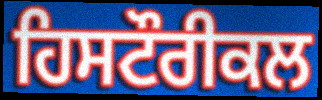
ਹਿਸਟੌਰੀਕਲ